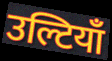
उल्टियाँ